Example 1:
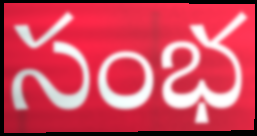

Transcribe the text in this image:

సంభ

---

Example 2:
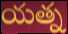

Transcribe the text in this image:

యత్న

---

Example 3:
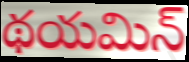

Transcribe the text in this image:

థయమిన్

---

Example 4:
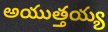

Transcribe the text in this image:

అయుత్తయ్య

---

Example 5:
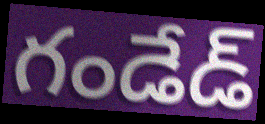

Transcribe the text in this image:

గండేడ్